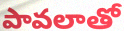
పావలాతో